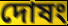
দোষং